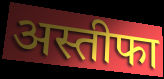
अस्तीफा